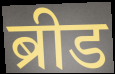
ब्रीड